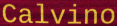
Calvino